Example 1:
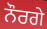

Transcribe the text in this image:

ਨੌਰਗੇ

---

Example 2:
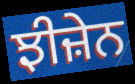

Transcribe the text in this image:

ਝੀਜ਼ੇਨ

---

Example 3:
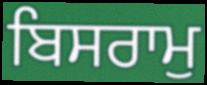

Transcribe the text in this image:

ਬਿਸਰਾਮੁ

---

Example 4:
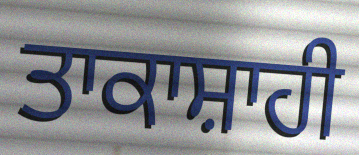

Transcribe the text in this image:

ਤਾਕਾਸ਼ਾਹੀ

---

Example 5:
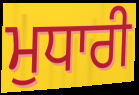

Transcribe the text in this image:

ਮੁਧਾਰੀ